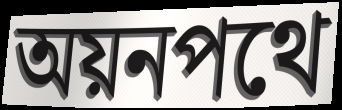
অয়নপথে